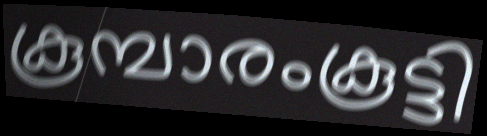
കൂമ്പാരംകൂട്ടി